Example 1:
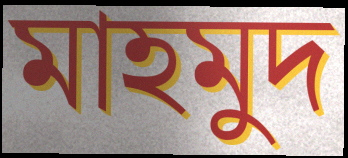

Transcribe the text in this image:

মাহমুদ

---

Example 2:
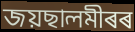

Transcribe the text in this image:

জয়ছালমীৰৰ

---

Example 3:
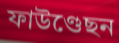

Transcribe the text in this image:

ফাউণ্ডেছন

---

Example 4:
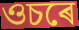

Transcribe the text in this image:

ওচৰে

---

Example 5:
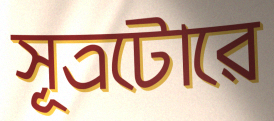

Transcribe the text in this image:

সূত্ৰটোৱে